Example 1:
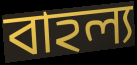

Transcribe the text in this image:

বাহল্য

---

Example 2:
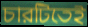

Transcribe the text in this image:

চারটিতেই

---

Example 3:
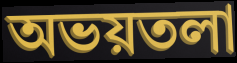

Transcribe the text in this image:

অভয়তলা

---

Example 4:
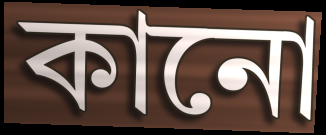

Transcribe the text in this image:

কানো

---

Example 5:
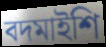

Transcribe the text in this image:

বদমাইশি